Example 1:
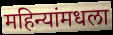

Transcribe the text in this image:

महिन्यांमधला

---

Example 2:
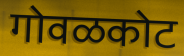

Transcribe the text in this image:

गोवळकोट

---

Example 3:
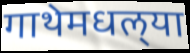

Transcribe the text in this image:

गाथेमधल्या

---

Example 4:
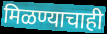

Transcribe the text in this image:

मिळण्याचाही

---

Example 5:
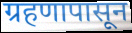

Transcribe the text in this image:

ग्रहणापासून